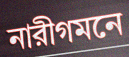
নারীগমনে